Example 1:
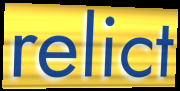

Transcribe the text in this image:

relict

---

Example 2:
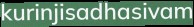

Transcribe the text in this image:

kurinjisadhasivam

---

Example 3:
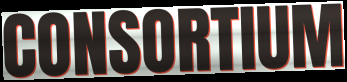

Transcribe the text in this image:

CONSORTIUM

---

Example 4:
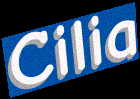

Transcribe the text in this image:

Cilia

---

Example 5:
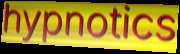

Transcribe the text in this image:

hypnotics